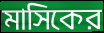
মাসিকের